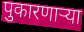
पुकारणार्‍या